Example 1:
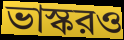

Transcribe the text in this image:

ভাস্করও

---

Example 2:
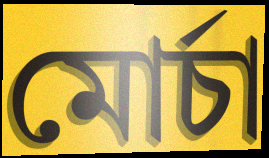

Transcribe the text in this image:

মোর্চা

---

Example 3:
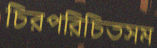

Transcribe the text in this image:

চিরপরিচিতসম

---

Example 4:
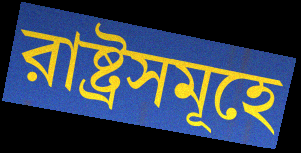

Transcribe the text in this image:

রাষ্ট্রসমূহে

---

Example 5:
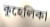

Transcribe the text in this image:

কুহেলিকা